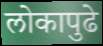
लोकापुढे